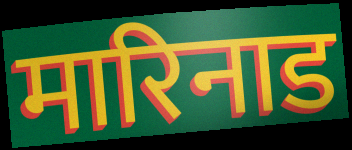
मारिनाड